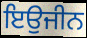
ਇਉਜੀਨ